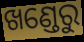
ଖଣ୍ଡେରୁ